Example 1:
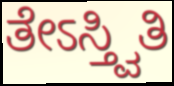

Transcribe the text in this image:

ತೇಽಸ್ತ್ವಿತಿ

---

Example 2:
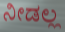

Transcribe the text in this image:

ನೀಡಲ್ಲ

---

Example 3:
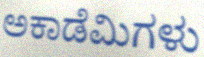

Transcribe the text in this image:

ಅಕಾಡೆಮಿಗಳು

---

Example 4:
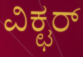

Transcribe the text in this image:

ವಿಕ್ಟರ್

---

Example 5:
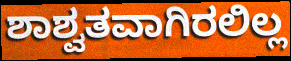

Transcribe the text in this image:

ಶಾಶ್ವತವಾಗಿರಲಿಲ್ಲ